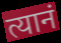
त्यानं